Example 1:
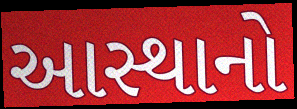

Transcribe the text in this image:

આસ્થાનો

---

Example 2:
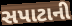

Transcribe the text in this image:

સપાટાની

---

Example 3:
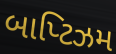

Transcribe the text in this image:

બાપ્ટિઝમ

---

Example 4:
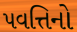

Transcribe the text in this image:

પવત્તિનો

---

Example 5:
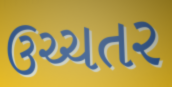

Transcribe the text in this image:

ઉચ્ચતર